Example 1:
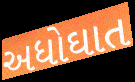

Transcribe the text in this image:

અધોઘાત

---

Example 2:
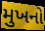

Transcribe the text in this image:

મુખનો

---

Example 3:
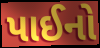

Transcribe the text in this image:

પાઈનો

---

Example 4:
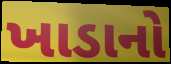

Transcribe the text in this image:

ખાડાનો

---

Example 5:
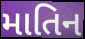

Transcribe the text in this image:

માતિન